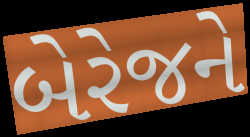
બેરેજને